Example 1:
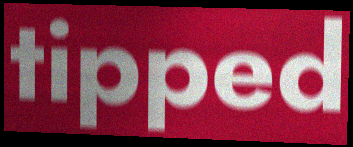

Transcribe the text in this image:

tipped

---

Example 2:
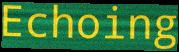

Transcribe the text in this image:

Echoing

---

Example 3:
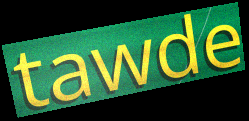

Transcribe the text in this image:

tawde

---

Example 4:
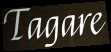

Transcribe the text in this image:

Tagare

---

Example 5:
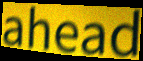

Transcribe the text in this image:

ahead